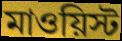
মাওয়িস্ট